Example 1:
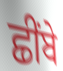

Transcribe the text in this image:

ਛੀਂਬੇ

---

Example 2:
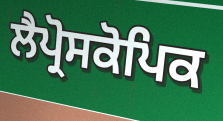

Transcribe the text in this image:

ਲੈਪ੍ਰੋਸਕੋਪਿਕ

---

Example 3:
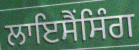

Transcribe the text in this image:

ਲਾਇਸੈਂਸਿੰਗ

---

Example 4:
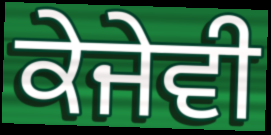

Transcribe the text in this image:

ਕੇਜੇਵੀ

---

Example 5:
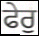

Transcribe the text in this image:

ਫੇਰੁ